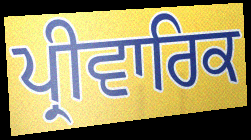
ਪ੍ਰੀਵਾਰਿਕ